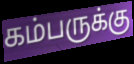
கம்பருக்கு